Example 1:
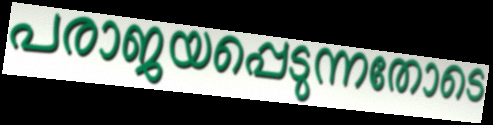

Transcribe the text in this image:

പരാജയപ്പെടുന്നതോടെ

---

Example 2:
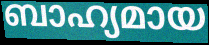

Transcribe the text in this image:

ബാഹ്യമായ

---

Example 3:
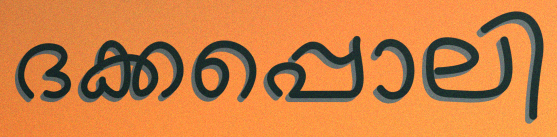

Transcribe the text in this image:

ദക്കപ്പൊലി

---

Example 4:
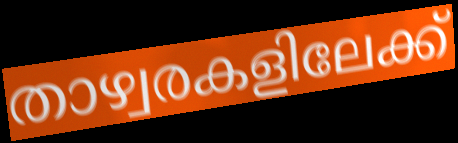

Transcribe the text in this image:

താഴ്വരകളിലേക്ക്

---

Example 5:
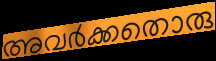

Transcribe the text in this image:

അവർക്കതൊരു